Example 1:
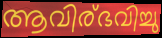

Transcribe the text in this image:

ആവിര്ഭവിച്ചു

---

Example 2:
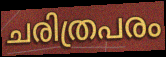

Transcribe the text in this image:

ചരിത്രപരം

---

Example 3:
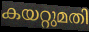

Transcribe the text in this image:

കയറ്റുമതി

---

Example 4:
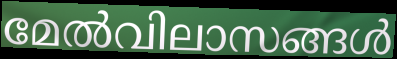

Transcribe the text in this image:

മേൽവിലാസങ്ങൾ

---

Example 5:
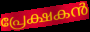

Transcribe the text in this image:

പ്രേക്ഷകൻ